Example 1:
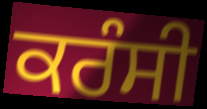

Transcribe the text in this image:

ਕਰੰਸੀ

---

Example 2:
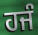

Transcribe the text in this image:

ਹਜੰ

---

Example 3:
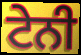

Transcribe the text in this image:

ਟੇਨੀ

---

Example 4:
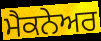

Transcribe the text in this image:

ਮੈਕਨੇਅਰ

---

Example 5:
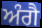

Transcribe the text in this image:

ਅੰਗੈ